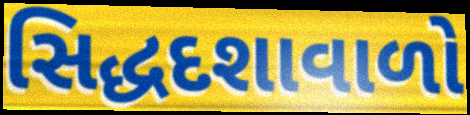
સિદ્ધદશાવાળો